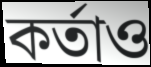
কর্তাও